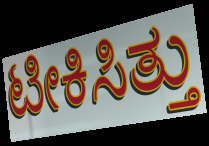
ಟೀಕಿಸಿತ್ತು